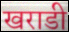
खराडी